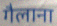
गैलाना